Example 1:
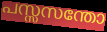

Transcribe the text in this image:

പസ്സസന്തോ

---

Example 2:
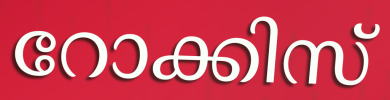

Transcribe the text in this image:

റോക്കിസ്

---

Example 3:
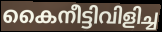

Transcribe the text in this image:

കൈനീട്ടിവിളിച്ച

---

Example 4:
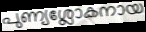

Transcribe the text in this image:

പുണ്യശ്ലോകനായ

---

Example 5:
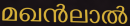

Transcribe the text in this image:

മഖൻലാൽ